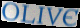
OLIVE